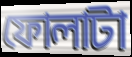
ফোলাটা